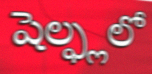
షెల్ఫ్లలో